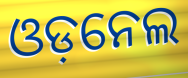
ଓଡ଼ନେଲ